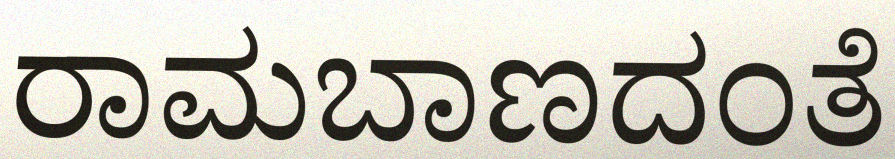
ರಾಮಬಾಣದಂತೆ